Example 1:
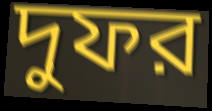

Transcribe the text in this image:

দুফর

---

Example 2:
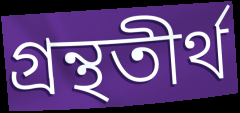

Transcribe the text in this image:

গ্রন্থতীর্থ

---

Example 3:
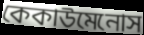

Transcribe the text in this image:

কেকাউমেনোস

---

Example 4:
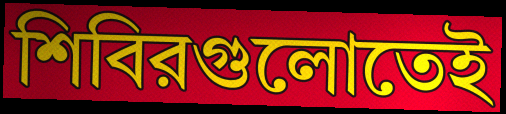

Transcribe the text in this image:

শিবিরগুলোতেই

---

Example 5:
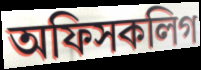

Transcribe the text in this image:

অফিসকলিগ